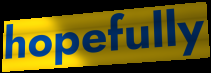
hopefully